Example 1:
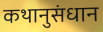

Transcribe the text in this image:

कथानुसंधान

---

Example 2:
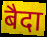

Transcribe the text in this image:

बैदा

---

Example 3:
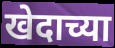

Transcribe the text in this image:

खेदाच्या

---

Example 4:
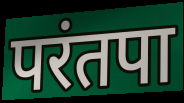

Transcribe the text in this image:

परंतपा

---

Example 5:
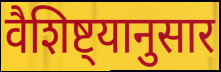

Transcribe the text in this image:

वैशिष्ट्यानुसार